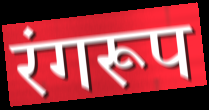
रंगरूप